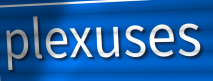
plexuses